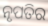
ନୃପତିର